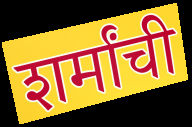
शर्मांची